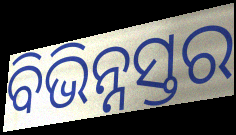
ବିଭିନ୍ନସ୍ତର